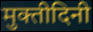
मुक्तीदिनी